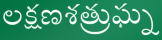
లక్షణశత్రుఘ్న